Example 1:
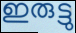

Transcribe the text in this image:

ഇരുട്ടു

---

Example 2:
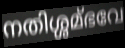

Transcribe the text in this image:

നതിശ്ശമ്ഭവേ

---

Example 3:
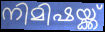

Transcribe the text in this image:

നിമിഷയ്ക്ക്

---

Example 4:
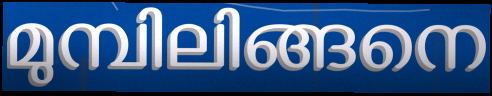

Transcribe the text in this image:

മുമ്പിലിങ്ങനെ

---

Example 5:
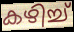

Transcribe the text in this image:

കഴിച്ച്